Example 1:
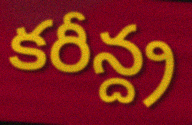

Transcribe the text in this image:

కరీన్ద్ర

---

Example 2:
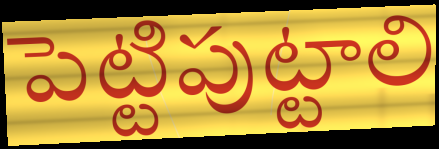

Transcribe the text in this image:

పెట్టిపుట్టాలి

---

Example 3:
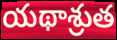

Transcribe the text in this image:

యథాశ్రుత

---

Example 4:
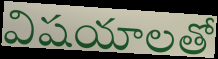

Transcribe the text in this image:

విషయాలతో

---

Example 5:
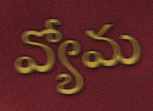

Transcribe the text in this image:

వ్యోమ